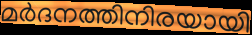
മർദനത്തിനിരയായി